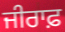
ਜੀਰਾਫ਼